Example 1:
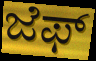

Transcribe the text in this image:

ಜೆಫ್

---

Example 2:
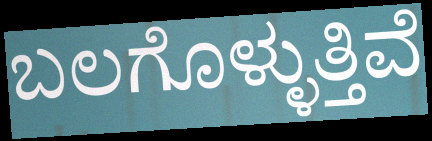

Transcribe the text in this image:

ಬಲಗೊಳ್ಳುತ್ತಿವೆ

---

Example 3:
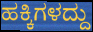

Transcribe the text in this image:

ಹಕ್ಕಿಗಳದ್ದು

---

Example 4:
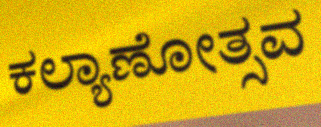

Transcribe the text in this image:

ಕಲ್ಯಾಣೋತ್ಸವ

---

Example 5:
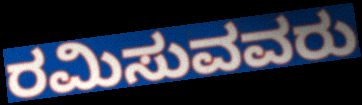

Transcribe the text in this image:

ರಮಿಸುವವರು